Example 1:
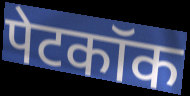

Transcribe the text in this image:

पेटकॉक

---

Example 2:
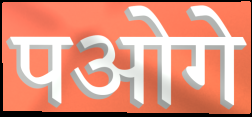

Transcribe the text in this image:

पओगे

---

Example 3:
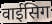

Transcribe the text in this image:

वाईसिग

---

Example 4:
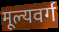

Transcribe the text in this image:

मूल्यवर्ग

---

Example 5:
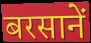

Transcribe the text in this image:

बरसानें